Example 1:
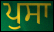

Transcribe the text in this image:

ਪੁਸਾ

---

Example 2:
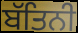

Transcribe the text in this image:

ਬੱਤਿਨੀ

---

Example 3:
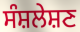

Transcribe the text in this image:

ਸੰਸ਼ਲੇਸ਼ਣ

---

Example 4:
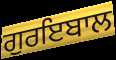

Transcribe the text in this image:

ਗੁਰਇਬਾਲ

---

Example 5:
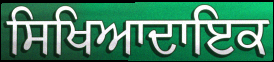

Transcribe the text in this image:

ਸਿਖਿਆਦਾਇਕ